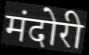
मंदोरी